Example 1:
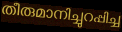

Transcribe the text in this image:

തീരുമാനിച്ചുറപ്പിച്ച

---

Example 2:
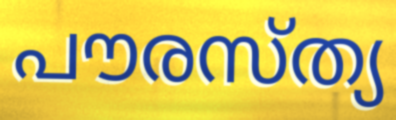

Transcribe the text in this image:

പൗരസ്ത്യ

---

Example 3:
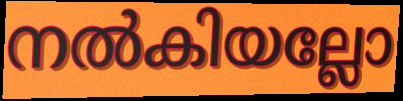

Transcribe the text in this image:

നൽകിയല്ലോ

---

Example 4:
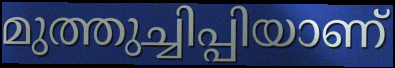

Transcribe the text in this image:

മുത്തുച്ചിപ്പിയാണ്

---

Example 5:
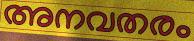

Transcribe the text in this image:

അനവതരം